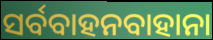
ସର୍ବବାହନବାହାନା